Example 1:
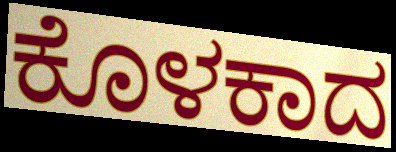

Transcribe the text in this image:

ಕೊಳಕಾದ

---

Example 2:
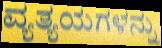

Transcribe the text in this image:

ವ್ಯತ್ಯಯಗಳನ್ನು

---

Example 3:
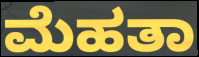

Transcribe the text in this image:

ಮೆಹತಾ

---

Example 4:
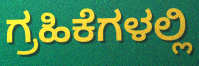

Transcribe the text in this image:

ಗ್ರಹಿಕೆಗಳಲ್ಲಿ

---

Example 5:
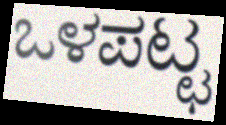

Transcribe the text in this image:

ಒಳಪಟ್ಟ